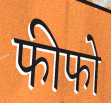
फीफो